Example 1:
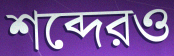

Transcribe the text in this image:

শব্দেরও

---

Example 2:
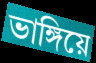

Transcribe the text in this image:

ভাঙ্গিয়ে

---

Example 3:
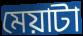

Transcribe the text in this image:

মেয়াটা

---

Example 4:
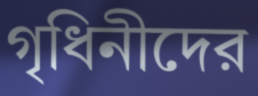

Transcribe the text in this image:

গৃধিনীদের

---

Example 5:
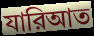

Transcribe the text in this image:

যারিআত